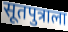
सूतपुत्राला